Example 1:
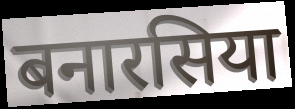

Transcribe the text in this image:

बनारसिया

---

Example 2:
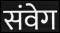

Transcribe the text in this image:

संवेग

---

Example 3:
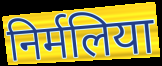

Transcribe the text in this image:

निर्मलिया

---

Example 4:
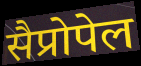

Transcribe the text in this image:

सैप्रोपेल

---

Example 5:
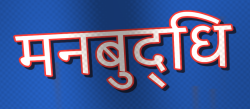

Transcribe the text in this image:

मनबुद्धि